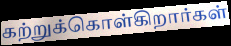
கற்றுக்கொள்கிறார்கள்